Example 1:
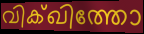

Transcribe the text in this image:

വിക്ഖിത്തോ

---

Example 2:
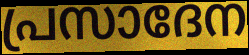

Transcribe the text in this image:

പ്രസാദേന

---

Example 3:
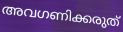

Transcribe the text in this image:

അവഗണിക്കരുത്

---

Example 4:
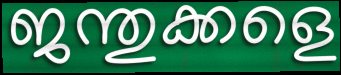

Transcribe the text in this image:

ജന്തുക്കളെ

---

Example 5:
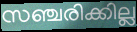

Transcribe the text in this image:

സഞ്ചരിക്കില്ല